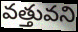
వత్తువని